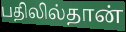
பதிலில்தான்